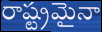
రాష్ట్రమైనా